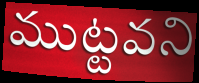
ముట్టవని